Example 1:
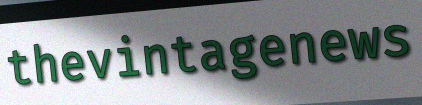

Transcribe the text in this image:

thevintagenews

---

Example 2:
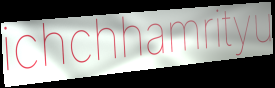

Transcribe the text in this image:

ichchhamrityu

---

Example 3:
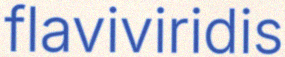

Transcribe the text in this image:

flaviviridis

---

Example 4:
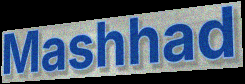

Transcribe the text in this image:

Mashhad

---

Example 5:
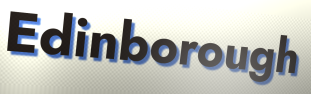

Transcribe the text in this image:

Edinborough